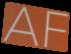
AF